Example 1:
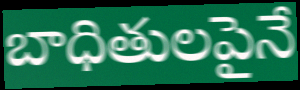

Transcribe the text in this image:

బాధితులపైనే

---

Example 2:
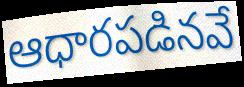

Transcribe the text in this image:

ఆధారపడినవే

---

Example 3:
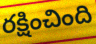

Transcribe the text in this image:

రక్షించింది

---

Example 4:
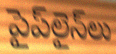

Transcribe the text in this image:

పైప్‌లైన్‌లు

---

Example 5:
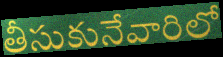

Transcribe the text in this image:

తీసుకునేవారిలో